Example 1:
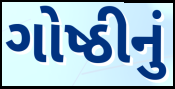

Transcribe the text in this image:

ગોષ્ઠીનું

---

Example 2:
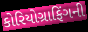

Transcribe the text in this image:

કોરિયોગ્રાફિંગની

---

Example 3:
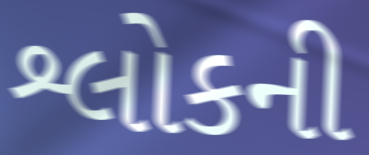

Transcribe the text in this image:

શ્લોકની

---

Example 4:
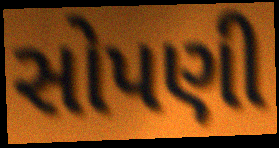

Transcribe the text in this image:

સોપણી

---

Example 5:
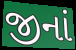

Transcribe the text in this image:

જીનાં